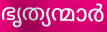
ഭൃത്യന്മാർ